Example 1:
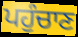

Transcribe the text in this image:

ਪਹੁੰਚਾਣ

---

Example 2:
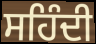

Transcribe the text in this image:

ਸਹਿੰਦੀ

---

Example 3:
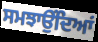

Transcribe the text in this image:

ਸਮਝਾਉਂਦਿਆਂ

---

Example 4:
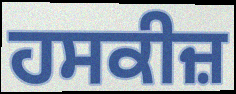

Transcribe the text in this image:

ਹਸਕੀਜ਼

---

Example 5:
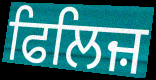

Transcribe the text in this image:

ਫਿਲਿਜ਼